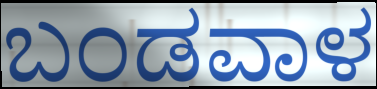
ಬಂಡವಾಳ